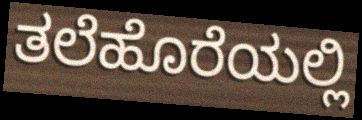
ತಲೆಹೊರೆಯಲ್ಲಿ